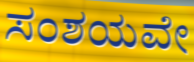
ಸಂಶಯವೇ